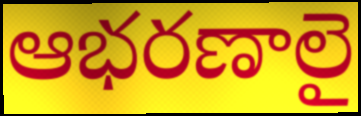
ఆభరణాలై